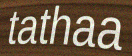
tathaa